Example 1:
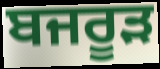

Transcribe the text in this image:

ਬਜਰੂੜ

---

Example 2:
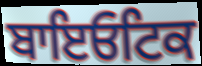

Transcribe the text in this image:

ਬਾਇਓਟਿਕ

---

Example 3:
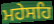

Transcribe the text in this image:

ਮਹੇਸਹਿ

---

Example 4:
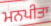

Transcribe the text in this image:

ਮਨਪੀਤਾ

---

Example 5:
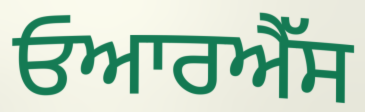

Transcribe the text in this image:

ਓਆਰਐੱਸ